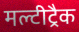
मल्टीट्रैक